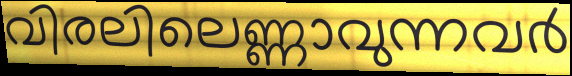
വിരലിലെണ്ണാവുന്നവർ